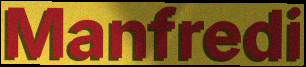
Manfredi